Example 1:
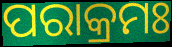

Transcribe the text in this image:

ପରାକ୍ରମଃ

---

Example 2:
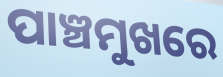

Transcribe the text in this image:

ପାଞ୍ଚମୁଖରେ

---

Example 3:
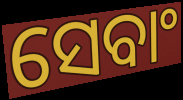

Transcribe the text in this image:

ସେବାଂ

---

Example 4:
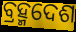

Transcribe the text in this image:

ବ୍ରହ୍ମଦେଶ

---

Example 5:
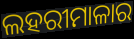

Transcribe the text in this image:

ଲହରୀମାଳାର